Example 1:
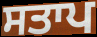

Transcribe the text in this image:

ਸਤਾਪ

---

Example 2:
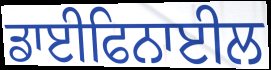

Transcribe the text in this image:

ਡਾਈਫਿਨਾਈਲ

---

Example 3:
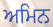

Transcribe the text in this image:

ਅਮਿਨ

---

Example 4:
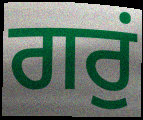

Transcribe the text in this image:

ਗਰੁਂ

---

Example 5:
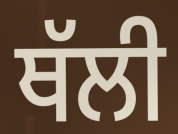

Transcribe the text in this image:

ਥੱਲੀ